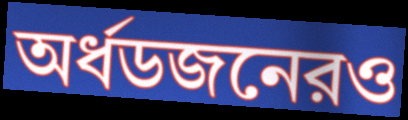
অর্ধডজনেরও